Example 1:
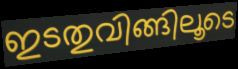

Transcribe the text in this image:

ഇടതുവിങ്ങിലൂടെ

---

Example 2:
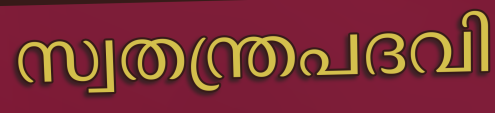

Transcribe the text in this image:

സ്വതന്ത്രപദവി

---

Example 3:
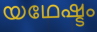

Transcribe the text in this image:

യഥേഷ്ടം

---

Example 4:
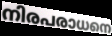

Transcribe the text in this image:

നിരപരാധനെ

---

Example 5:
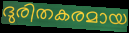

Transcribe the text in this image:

ദുരിതകരമായ